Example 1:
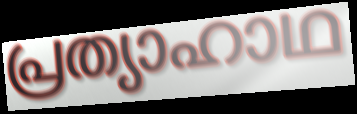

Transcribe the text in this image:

പ്രത്യാഹാഥ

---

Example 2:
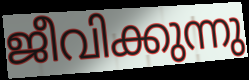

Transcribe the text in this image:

ജീവിക്കുന്നു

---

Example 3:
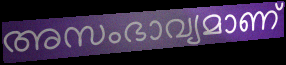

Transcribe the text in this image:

അസംഭാവ്യമാണ്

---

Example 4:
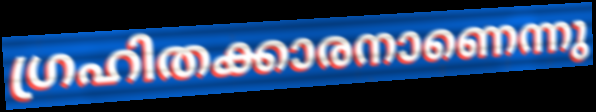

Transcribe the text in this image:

ഗ്രഹിതക്കാരനാണെന്നു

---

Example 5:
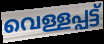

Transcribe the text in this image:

വെള്ളപ്പട്ട്